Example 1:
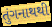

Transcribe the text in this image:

તુંગનાથથી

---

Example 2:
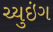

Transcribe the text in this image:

ચ્યુઇંગ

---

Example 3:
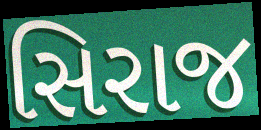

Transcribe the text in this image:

સિરાજ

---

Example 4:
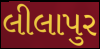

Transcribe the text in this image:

લીલાપુર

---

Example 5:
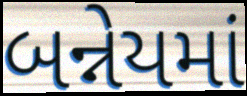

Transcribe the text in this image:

બન્નેયમાં